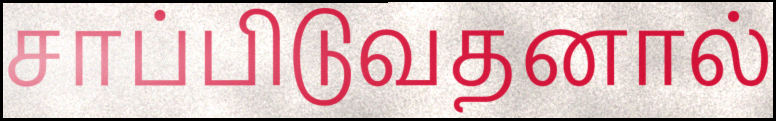
சாப்பிடுவதனால்